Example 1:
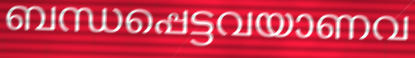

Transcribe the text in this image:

ബന്ധപ്പെട്ടവയാണവ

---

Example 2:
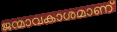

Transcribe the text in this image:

ജന്മാവകാശമാണ്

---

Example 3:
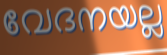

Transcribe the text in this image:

വേദനയല്ല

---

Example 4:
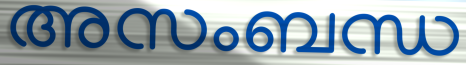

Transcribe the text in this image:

അസംബന്ധ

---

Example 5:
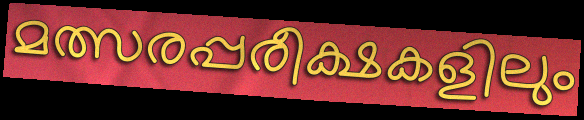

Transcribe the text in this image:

മത്സരപ്പരീക്ഷകളിലും